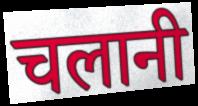
चलानी